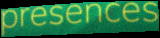
presences